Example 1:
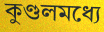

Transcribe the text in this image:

কুণ্ডলমধ্যে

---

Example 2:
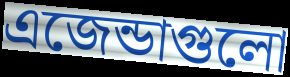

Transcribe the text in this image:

এজেন্ডাগুলো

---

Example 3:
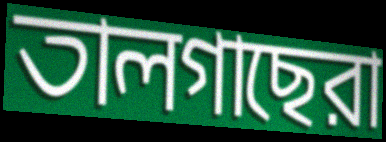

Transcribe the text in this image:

তালগাছেরা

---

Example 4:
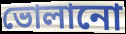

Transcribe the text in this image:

ভোলানো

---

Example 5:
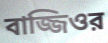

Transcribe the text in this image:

বাজ্জিওর